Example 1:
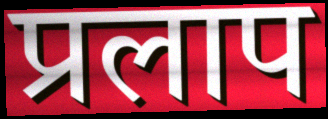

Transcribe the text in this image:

प्रलाप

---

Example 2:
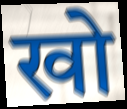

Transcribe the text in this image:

खो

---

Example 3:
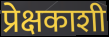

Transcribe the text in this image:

प्रेक्षकाशी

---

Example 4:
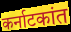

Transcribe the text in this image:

कर्नाटकांत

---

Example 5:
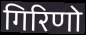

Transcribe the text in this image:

गिरिणो